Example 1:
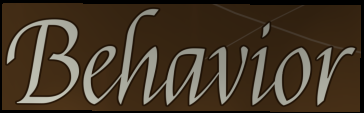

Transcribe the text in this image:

Behavior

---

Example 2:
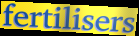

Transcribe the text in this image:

fertilisers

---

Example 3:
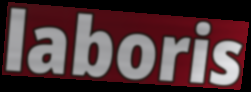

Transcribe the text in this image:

laboris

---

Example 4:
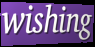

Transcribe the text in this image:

wishing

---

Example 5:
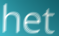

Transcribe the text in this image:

het